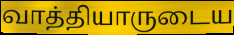
வாத்தியாருடைய